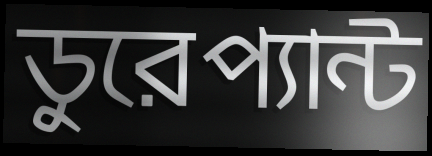
ডুরেপ্যান্ট